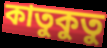
কাতুকুতু